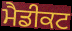
ਮੈਡੀਕਟ